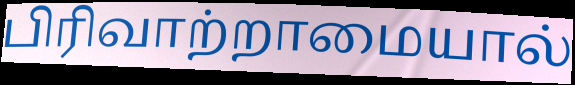
பிரிவாற்றாமையால்